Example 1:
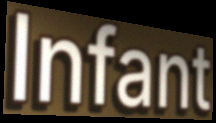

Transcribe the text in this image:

Infant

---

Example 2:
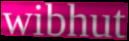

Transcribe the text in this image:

wibhut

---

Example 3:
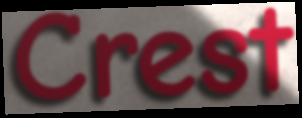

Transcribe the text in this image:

Crest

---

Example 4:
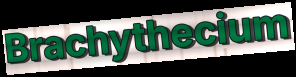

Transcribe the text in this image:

Brachythecium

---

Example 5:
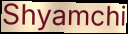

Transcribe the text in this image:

Shyamchi